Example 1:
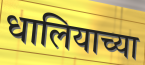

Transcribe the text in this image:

धालियाच्या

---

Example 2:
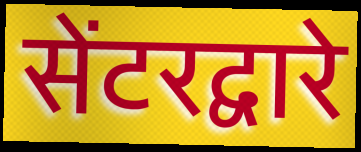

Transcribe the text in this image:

सेंटरद्वारे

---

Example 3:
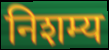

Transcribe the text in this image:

निशम्य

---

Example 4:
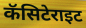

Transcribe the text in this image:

कॅसिटेराइट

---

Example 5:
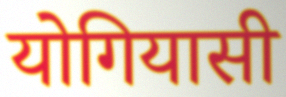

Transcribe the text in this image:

योगियासी